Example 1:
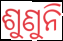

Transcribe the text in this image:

ଶୁଣୁନି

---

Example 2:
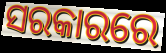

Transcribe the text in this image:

ସରକାରରେ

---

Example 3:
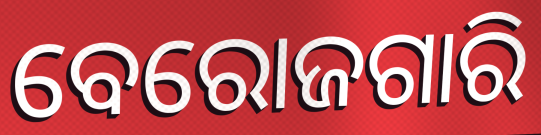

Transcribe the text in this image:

ବେରୋଜଗାରି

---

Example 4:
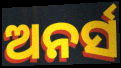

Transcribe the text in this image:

ଅନର୍ସ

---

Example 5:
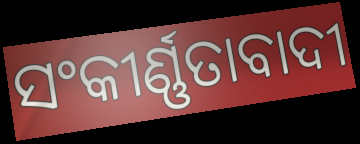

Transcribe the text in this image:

ସଂକୀର୍ଣ୍ଣତାବାଦୀ